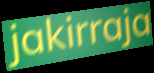
jakirraja